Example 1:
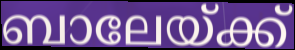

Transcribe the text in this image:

ബാലേയ്ക്ക്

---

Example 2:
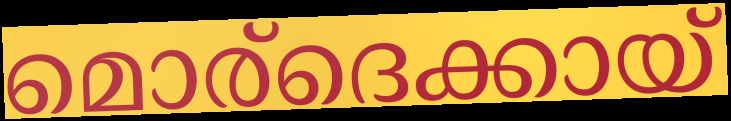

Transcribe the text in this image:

മൊര്ദെക്കായ്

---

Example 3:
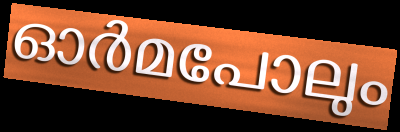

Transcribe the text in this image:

ഓർമപോലും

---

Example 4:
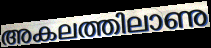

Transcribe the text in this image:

അകലത്തിലാണു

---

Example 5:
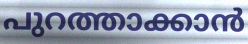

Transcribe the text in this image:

പുറത്താക്കാൻ